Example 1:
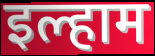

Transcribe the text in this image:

इल्हाम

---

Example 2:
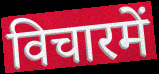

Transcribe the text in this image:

विचारमें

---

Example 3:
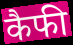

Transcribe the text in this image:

कैफी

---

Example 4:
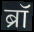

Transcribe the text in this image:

ब्रॉ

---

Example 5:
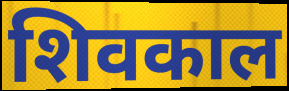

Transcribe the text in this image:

शिवकाल